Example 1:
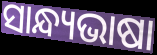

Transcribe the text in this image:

ସାନ୍ଧ୍ୟଭାଷା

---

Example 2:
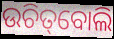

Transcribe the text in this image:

ଉଚିତ୍‌ବୋଲି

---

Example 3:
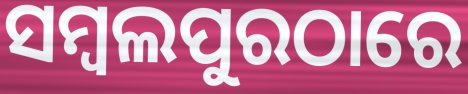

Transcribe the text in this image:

ସମ୍ବଲପୁରଠାରେ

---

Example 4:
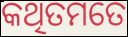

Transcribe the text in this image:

କଥିତମତେ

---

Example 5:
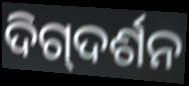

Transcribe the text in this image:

ଦିଗ୍‌ଦର୍ଶନ